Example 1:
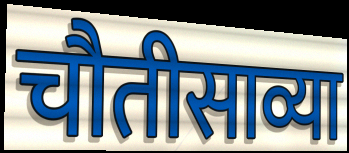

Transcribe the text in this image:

चौतीसाव्या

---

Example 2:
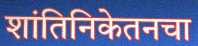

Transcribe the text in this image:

शांतिनिकेतनचा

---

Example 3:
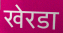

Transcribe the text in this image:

खेरडा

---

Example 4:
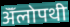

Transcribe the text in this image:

ॲॅलोपथी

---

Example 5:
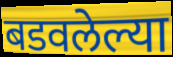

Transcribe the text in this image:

बडवलेल्या